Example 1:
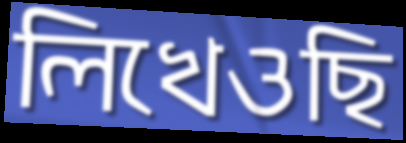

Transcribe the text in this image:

লিখেওছি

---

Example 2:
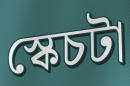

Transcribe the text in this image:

স্কেচটা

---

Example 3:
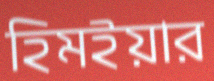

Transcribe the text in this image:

হিমইয়ার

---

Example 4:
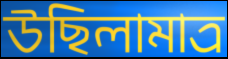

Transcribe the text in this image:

উছিলামাত্র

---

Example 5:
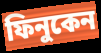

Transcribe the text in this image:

ফিনুকেন